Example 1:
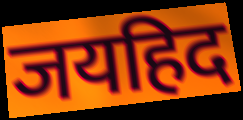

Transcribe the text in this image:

जयहिद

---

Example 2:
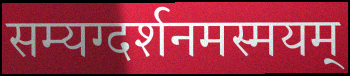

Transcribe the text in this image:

सम्यग्दर्शनमस्मयम्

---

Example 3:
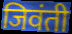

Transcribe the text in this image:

जिवंती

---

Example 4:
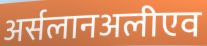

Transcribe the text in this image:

अर्सलानअलीएव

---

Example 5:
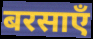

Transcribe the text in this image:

बरसाएँ